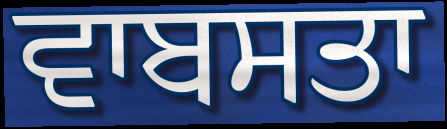
ਵਾਬਸਤਾ